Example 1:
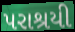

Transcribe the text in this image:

પરાશ્રયી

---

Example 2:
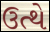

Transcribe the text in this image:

ઉત્થે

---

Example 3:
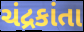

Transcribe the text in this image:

ચંદ્રકાંતા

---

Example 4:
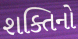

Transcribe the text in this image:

શક્તિનો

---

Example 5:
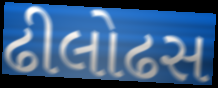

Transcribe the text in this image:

ઢીલોઢસ